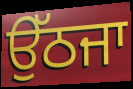
ਉੱਠਜਾ